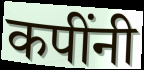
कपींनी